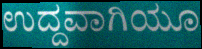
ಉದ್ದವಾಗಿಯೂ